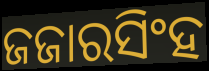
ଜଜାରସିଂହ